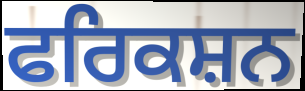
ਫਰਿਕਸ਼ਨ